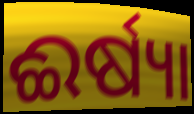
ଈର୍ଷ୍ୟା